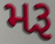
મરૂ